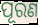
ପୂରଣ